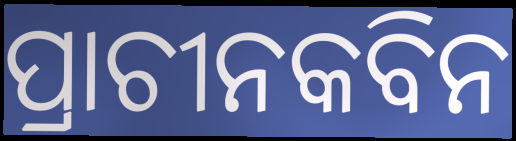
ପ୍ରାଚୀନକବିନ